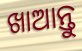
ଖାଆନ୍ତୁ